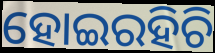
ହୋଇରହିଚି